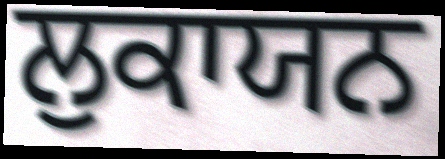
ਲੁਕਾਯਨ